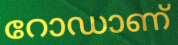
റോഡാണ്